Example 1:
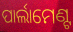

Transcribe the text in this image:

ପାର୍ଲାମେଣ୍ଟ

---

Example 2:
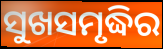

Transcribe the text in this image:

ସୁଖସମୃଦ୍ଧିର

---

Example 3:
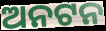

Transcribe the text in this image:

ଅନଟନ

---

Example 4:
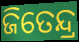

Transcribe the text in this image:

ଜିତେନ୍ଦ୍ର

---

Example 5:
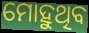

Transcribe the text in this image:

ମୋହୁଥିବ